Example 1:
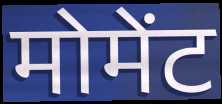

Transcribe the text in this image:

मोमेंट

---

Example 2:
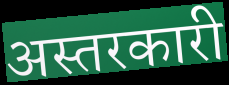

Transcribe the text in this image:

अस्तरकारी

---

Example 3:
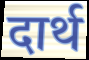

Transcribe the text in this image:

दार्थ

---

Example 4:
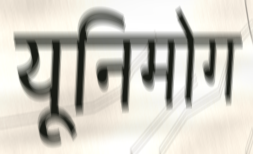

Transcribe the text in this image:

यूनिमोग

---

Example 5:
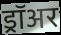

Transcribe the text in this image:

ड्रॉअर